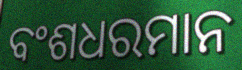
ବଂଶଧରମାନ